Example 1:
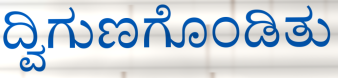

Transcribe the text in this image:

ದ್ವಿಗುಣಗೊಂಡಿತು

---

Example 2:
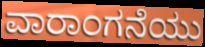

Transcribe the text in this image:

ವಾರಾಂಗನೆಯು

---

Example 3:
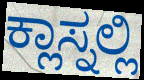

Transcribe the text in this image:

ಕ್ಲಾಸ್ನಲ್ಲಿ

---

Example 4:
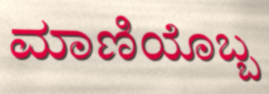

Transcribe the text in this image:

ಮಾಣಿಯೊಬ್ಬ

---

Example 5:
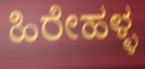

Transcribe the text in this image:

ಹಿರೇಹಳ್ಳ